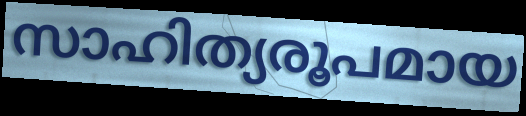
സാഹിത്യരൂപമായ